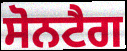
ਸੋਨਟੈਗ